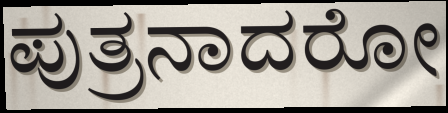
ಪುತ್ರನಾದರೋ